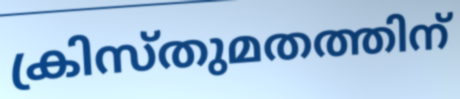
ക്രിസ്തുമതത്തിന്